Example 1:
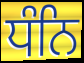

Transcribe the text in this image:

ਧੰਨਿ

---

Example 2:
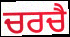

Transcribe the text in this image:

ਚਰਚੈ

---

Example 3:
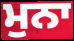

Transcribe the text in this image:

ਮੁਨਾ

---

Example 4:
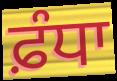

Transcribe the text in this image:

ਫ਼ੰਧਾ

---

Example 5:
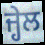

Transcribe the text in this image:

ਜ੍ਹੇਲ